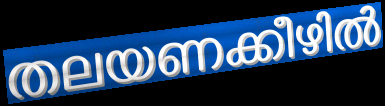
തലയണക്കീഴിൽ